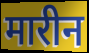
मारीन